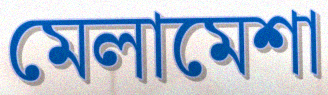
মেলামেশা